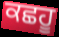
ਕਛਹੂ